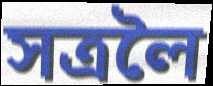
সত্ৰলৈ